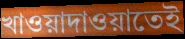
খাওয়াদাওয়াতেই